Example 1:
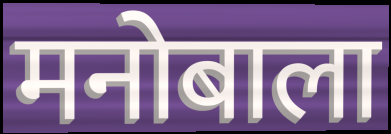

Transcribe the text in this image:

मनोबाला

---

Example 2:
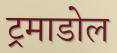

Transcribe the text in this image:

ट्रमाडोल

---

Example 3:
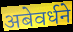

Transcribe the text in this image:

अबेवर्धने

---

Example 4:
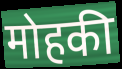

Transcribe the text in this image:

मोहकी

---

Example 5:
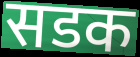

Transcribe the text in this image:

सडक